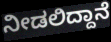
ನೀಡಲಿದ್ದಾನೆ